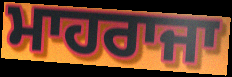
ਮਾਹਰਾਜਾ